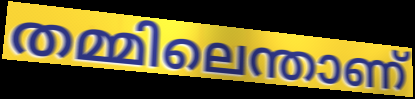
തമ്മിലെന്താണ്